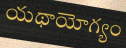
యథాయోగ్యం